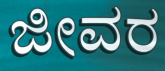
ಜೀವರ